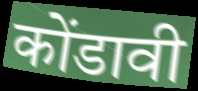
कोंडावी